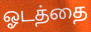
ஓடத்தை